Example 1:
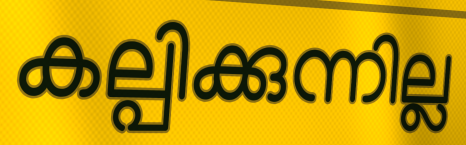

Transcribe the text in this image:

കല്പിക്കുന്നില്ല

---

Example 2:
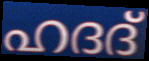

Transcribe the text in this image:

ഹദദ്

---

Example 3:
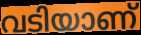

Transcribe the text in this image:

വടിയാണ്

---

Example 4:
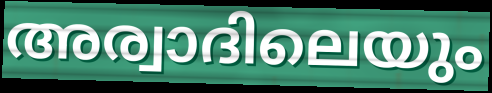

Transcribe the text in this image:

അര്വാദിലെയും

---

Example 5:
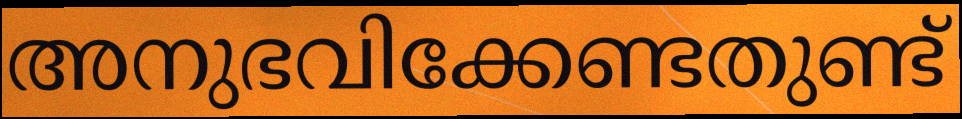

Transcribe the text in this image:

അനുഭവിക്കേണ്ടതുണ്ട്